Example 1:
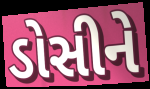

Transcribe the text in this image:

ડોસીને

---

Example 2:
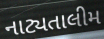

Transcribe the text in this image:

નાટ્યતાલીમ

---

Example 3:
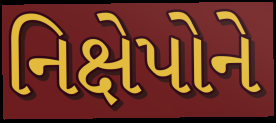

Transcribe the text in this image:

નિક્ષેપોને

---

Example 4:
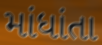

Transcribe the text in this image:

માંધાંતા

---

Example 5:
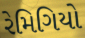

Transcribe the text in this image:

રેમિગિયો